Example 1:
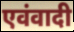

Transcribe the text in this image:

एवंवादी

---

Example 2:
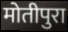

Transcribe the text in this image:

मोतीपुरा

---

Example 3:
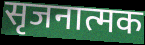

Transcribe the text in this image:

सृजनात्मक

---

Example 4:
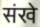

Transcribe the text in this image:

संखे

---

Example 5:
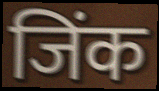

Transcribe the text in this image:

जिंक